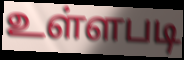
உள்ளபடி